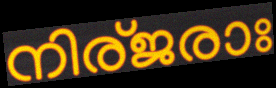
നിര്ജരാഃ